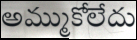
అమ్ముకోలేదు